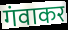
गंवाकर